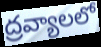
ద్రవ్యాలలో